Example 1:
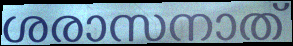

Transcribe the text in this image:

ശരാസനാത്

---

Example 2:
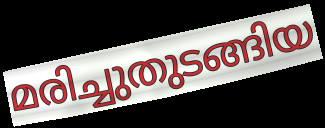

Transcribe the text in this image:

മരിച്ചുതുടങ്ങിയ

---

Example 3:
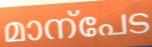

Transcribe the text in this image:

മാന്പേട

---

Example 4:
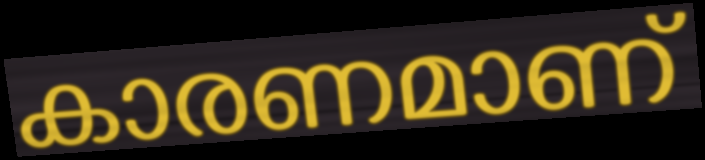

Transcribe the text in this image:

കാരണമാണ്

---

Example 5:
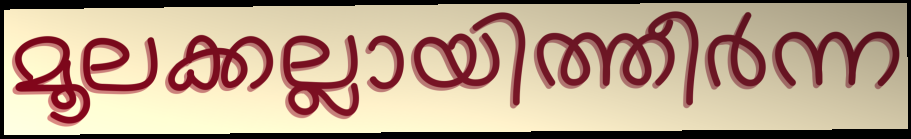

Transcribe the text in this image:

മൂലക്കല്ലായിത്തീർന്ന